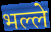
भल्ले